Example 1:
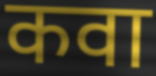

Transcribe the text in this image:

कवा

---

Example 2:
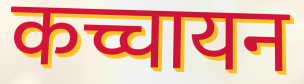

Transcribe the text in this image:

कच्चायन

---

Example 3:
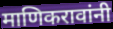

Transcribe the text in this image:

माणिकरावांनी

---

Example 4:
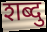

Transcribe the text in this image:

शब्दु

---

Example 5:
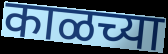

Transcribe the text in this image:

काळच्या